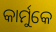
କାର୍ମୁକେ